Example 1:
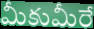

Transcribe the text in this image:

మీకుమీరే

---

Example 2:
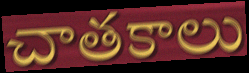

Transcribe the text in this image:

చాతకాలు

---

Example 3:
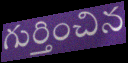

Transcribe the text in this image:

గుర్తించిన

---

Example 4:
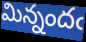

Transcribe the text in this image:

మిన్నందఁ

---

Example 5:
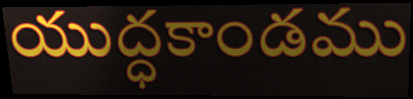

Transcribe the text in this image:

యుద్ధకాండము